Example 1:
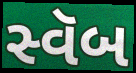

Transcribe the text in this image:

સ્વૅબ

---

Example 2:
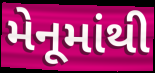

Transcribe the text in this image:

મેનૂમાંથી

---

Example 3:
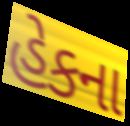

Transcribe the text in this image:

હેકના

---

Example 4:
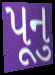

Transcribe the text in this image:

પૂનુ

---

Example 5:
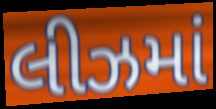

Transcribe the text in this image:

લીઝમાં